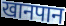
खानपान